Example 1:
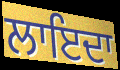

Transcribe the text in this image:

ਲਾਇਦਾ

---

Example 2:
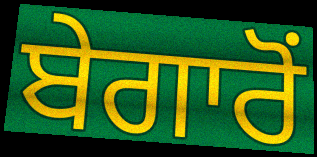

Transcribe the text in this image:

ਬੇਗਾਰੋਂ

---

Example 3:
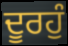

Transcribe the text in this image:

ਦੂਰਹੁੰ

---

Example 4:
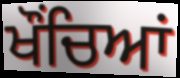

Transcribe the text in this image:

ਖੌਂਚਿਆਂ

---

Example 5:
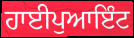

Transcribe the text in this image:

ਹਾਈਪੁਆਇੰਟ